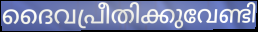
ദൈവപ്രീതിക്കുവേണ്ടി